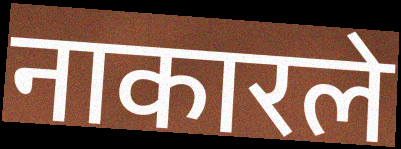
नाकारले